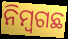
ନିମ୍ୱଗଛ